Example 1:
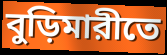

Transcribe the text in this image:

বুড়িমারীতে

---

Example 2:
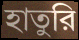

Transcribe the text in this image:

হাতুরি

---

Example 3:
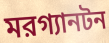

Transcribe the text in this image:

মরগ্যানটন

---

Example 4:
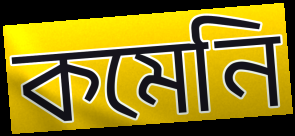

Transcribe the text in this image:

কমেনি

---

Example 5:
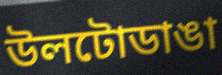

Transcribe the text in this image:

উলটোডাঙা